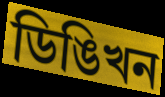
ডিঙিখন